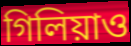
গিলিয়াও